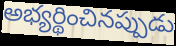
అభ్యర్థించినప్పుడు